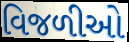
વિજળીઓ